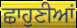
ਛਾਹੁਣੀਆਂ